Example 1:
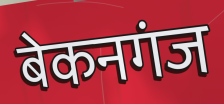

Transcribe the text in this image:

बेकनगंज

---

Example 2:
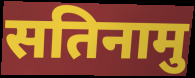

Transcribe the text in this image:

सतिनामु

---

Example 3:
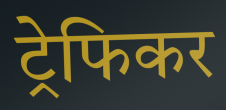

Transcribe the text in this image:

ट्रेफिकर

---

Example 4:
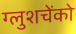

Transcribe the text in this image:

ग्लुशचेंको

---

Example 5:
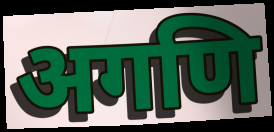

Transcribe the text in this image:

अगणि